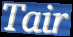
Tair